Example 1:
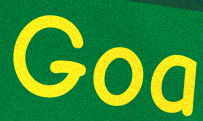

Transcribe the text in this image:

Goa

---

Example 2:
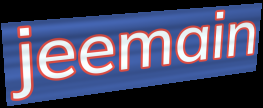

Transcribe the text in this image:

jeemain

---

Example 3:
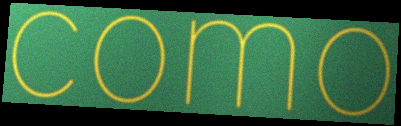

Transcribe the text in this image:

como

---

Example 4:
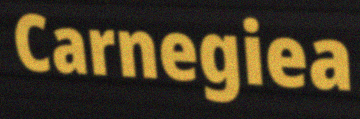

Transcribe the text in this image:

Carnegiea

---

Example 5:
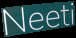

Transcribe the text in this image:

Neeti